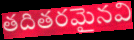
తదితరమైనవి